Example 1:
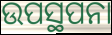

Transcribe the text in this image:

ଉପସ୍ଥପନା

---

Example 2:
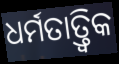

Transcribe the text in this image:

ଧର୍ମତାତ୍ତ୍ଵିକ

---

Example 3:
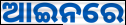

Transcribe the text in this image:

ଆଇନରେ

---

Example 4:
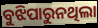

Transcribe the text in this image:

ବୁଝିପାରୁନଥିଲା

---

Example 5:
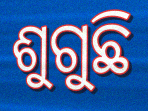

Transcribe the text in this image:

ଶୁଗୁଛି